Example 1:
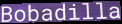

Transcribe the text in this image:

Bobadilla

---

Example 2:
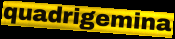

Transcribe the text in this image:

quadrigemina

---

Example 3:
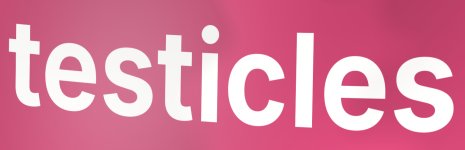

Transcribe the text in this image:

testicles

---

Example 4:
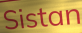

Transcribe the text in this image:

Sistan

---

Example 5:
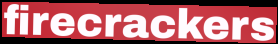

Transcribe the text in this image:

firecrackers